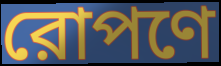
রোপণে